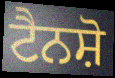
ਟੈਨਸ਼ੋ